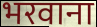
भरवाना